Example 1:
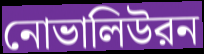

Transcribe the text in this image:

নোভালিউরন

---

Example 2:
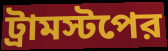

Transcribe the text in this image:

ট্রামস্টপের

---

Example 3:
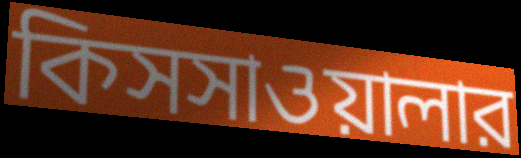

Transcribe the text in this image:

কিসসাওয়ালার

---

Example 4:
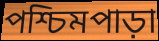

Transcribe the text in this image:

পশ্চিমপাড়া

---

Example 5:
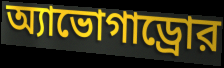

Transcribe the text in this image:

অ্যাভোগাড্রোর